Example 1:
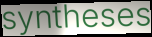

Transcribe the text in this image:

syntheses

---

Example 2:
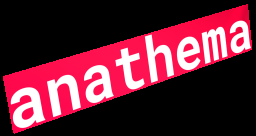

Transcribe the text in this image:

anathema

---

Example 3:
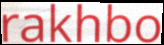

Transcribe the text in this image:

rakhbo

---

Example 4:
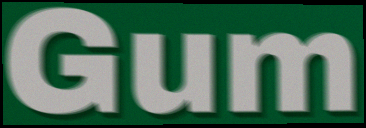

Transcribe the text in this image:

Gum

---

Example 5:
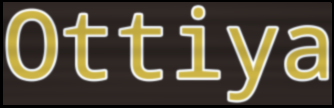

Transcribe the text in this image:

Ottiya